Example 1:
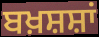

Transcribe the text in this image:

ਬਖ਼ਸ਼ਸ਼ਾਂ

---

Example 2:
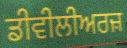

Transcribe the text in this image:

ਡੀਵੀਲੀਅਰਜ਼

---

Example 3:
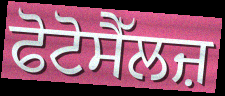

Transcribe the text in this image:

ਫੋਟੋਸੈੱਲਜ਼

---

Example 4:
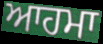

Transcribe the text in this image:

ਆਹਮਾ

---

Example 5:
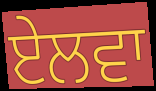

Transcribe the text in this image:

ਏਲਵਾ